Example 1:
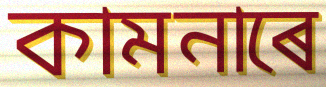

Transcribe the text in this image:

কামনাৰে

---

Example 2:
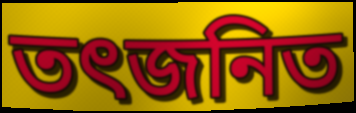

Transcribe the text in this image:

তৎজনিত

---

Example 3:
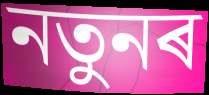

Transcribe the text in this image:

নতুনৰ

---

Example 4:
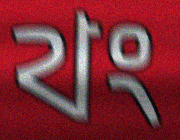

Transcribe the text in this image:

থং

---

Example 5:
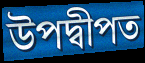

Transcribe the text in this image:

উপদ্বীপত